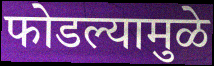
फोडल्यामुळे